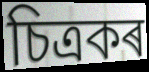
চিত্ৰকৰ